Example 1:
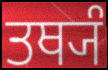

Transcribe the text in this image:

ਤਥ੍ਯੰ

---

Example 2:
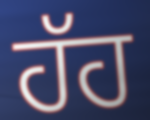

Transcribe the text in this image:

ਹੱਹ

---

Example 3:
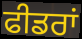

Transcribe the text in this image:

ਫੀਡਰਾਂ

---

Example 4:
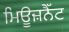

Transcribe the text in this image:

ਮਿਊਜ਼ਨੈੱਟ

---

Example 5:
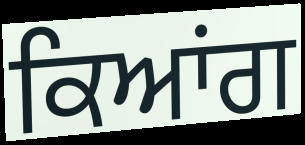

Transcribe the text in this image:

ਕਿਆਂਗ